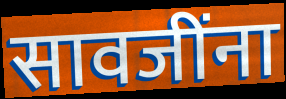
सावजींना